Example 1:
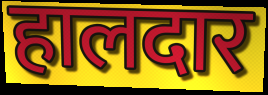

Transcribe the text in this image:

हालदार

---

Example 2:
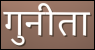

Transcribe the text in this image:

गुनीता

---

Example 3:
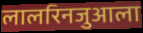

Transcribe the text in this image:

लालरिनजुआला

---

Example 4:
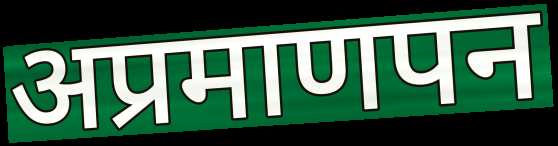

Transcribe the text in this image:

अप्रमाणपन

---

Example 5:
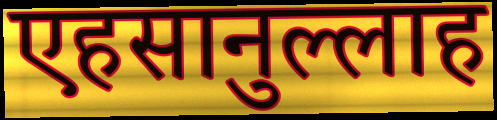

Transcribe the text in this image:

एहसानुल्लाह